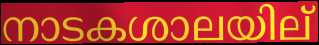
നാടകശാലയില്